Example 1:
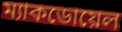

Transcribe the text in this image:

ম্যাকডোয়েল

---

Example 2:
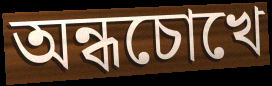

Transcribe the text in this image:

অন্ধচোখে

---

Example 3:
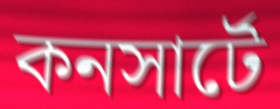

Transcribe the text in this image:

কনসার্টে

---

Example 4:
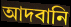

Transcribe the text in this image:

আদবানি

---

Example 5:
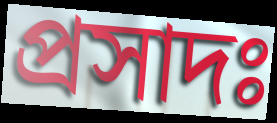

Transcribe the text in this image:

প্রসাদঃ